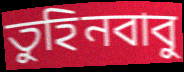
তুহিনবাবু